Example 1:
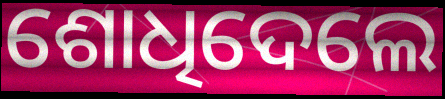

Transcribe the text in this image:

ଶୋଧିଦେଲେ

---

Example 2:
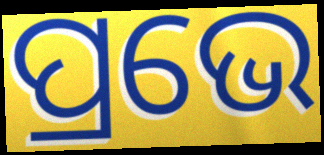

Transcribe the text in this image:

ପ୍ରଭେ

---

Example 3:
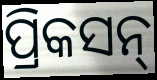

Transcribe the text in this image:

ପ୍ରିକସନ୍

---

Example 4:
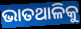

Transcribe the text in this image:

ଭାତଥାଳିକୁ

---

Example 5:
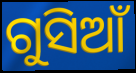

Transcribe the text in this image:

ଗୁସିଆଁ